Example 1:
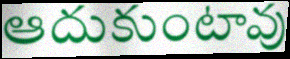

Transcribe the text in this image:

ఆదుకుంటావు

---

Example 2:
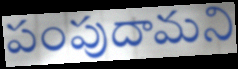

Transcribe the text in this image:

పంపుదామని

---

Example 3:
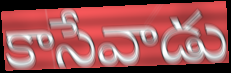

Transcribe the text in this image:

కాసేవాడు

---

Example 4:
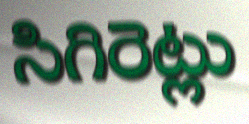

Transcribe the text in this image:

సిగిరెట్లు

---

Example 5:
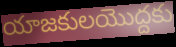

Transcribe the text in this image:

యాజకులయొద్దకు